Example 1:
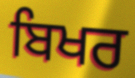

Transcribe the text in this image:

ਬਿਖਰ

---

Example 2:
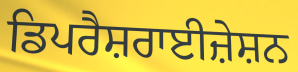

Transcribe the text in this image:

ਡਿਪਰੈਸ਼ਰਾਈਜ਼ੇਸ਼ਨ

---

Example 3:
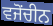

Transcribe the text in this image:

ਵਜੋਂਚੀਨ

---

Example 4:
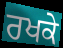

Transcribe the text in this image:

ਰਖਕੇ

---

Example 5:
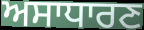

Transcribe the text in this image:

ਅਸਾਧਾਰਣ